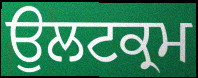
ਉਲਟਕ੍ਰਮ